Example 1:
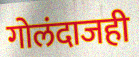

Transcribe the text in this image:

गोलंदाजही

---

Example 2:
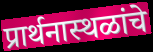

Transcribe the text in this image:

प्रार्थनास्थळांचे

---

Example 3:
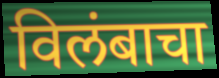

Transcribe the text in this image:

विलंबाचा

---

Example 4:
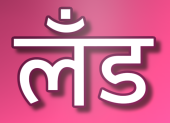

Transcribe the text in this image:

लँड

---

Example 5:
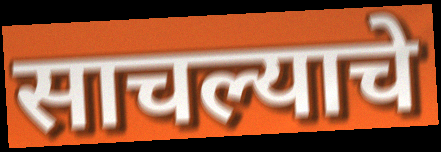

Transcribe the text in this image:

साचल्याचे